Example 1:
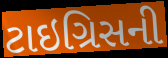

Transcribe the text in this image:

ટાઇગ્રિસની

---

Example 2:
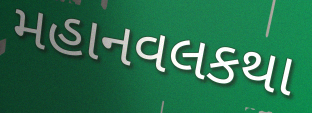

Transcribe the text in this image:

મહાનવલકથા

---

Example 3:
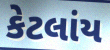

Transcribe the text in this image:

કેટલાંય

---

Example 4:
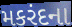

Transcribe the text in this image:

મકરંદના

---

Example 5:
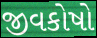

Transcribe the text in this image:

જીવકોષો